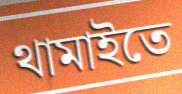
থামাইতে